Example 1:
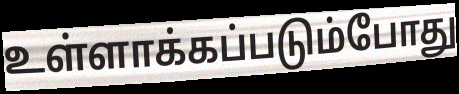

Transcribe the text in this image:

உள்ளாக்கப்படும்போது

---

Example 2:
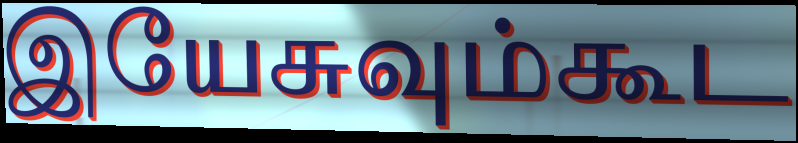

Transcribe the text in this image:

இயேசுவும்கூட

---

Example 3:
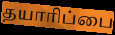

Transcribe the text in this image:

தயாரிப்பை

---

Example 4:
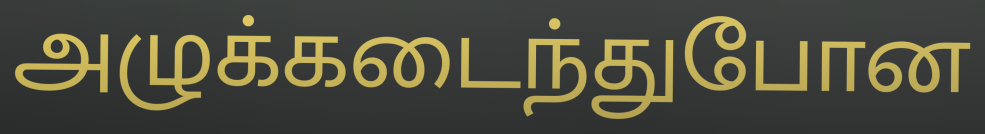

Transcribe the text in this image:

அழுக்கடைந்துபோன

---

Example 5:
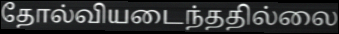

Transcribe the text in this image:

தோல்வியடைந்ததில்லை